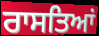
ਰਾਸਤਿਆਂ